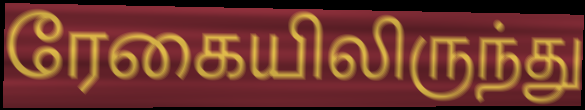
ரேகையிலிருந்து